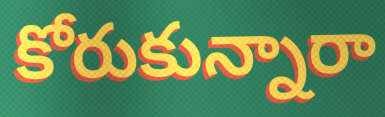
కోరుకున్నారా